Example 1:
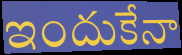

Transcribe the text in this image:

ఇందుకేనా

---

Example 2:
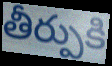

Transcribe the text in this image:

తీర్పుకి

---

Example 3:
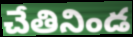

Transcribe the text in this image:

చేతినిండ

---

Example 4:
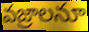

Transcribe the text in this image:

వజ్రాలనూ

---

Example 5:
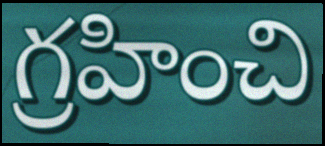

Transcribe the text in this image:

గ్రహించి